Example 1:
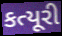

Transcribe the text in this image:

કત્યૂરી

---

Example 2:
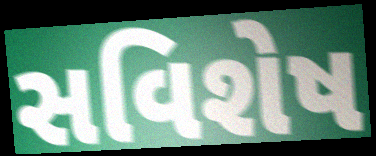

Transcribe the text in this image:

સવિશેષ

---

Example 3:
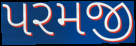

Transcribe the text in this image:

પરમજી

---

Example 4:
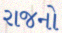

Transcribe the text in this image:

રાજનો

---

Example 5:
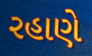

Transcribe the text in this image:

રહાણે